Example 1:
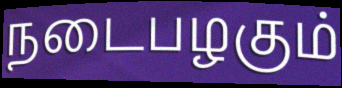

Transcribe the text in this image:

நடைபழகும்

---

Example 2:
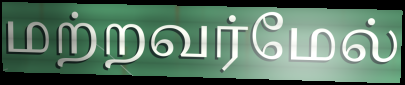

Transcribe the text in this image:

மற்றவர்மேல்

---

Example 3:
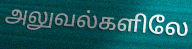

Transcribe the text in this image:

அலுவல்களிலே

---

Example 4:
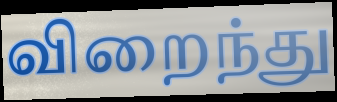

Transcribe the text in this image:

விறைந்து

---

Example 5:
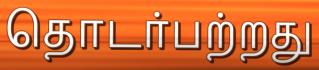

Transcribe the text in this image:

தொடர்பற்றது